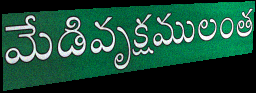
మేడివృక్షములంత